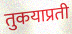
तुकयाप्रती